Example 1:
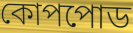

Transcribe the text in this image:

কোপপোড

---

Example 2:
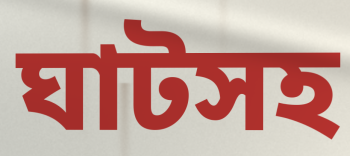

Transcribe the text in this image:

ঘাটসহ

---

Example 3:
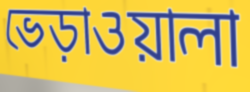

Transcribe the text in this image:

ভেড়াওয়ালা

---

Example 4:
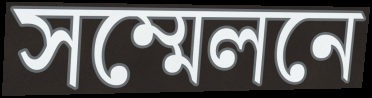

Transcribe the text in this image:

সম্মেলনে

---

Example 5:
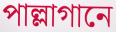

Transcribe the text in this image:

পাল্লাগানে